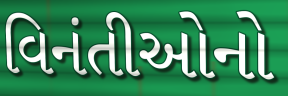
વિનંતીઓનો